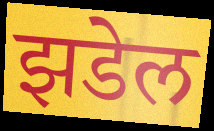
झडेल